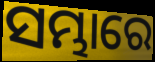
ସମ୍ଭାରେ